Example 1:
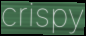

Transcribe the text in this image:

crispy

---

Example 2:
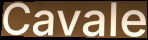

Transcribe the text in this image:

Cavale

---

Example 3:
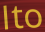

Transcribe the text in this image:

Ito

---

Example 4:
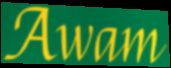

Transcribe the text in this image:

Awam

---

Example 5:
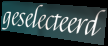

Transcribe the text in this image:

geselecteerd